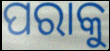
ପରାକୁ